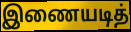
இணையடித்